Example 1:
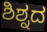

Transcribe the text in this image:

ಶಿಶ್ನದ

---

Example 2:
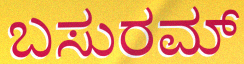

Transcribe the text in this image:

ಬಸುರಮ್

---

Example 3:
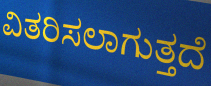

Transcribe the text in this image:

ವಿತರಿಸಲಾಗುತ್ತದೆ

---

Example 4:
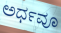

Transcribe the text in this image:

ಅರ್ಧವೂ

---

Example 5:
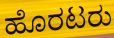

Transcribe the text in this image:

ಹೊರಟರು